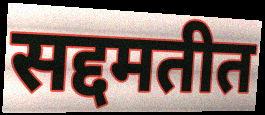
सद्दमतीत